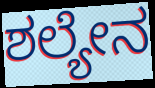
ಶಲ್ಯೇನ